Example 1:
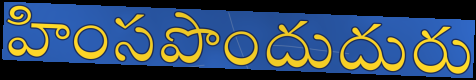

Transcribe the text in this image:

హింసపొందుదురు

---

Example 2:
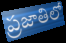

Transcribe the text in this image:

ప్రజాతిలో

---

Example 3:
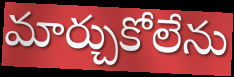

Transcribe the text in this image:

మార్చుకోలేను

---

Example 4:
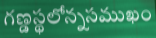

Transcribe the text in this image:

గణ్డస్థలోన్నసముఖం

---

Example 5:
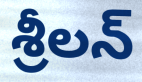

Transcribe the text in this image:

శ్రీలన్